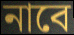
নাবে